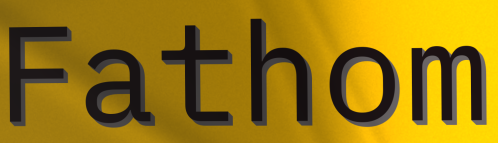
Fathom